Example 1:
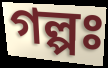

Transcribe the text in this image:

গল্পঃ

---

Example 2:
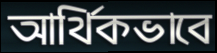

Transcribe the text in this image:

আর্থিকভাবে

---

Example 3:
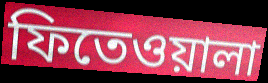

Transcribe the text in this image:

ফিতেওয়ালা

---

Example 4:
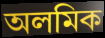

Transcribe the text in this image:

অলমিক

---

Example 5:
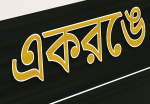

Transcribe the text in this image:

একরঙে